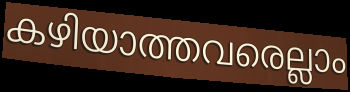
കഴിയാത്തവരെല്ലാം